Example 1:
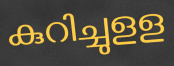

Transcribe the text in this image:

കുറിച്ചുളള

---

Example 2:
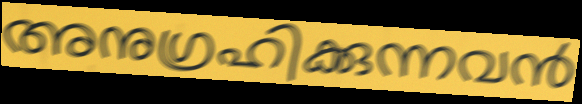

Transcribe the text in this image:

അനുഗ്രഹിക്കുന്നവൻ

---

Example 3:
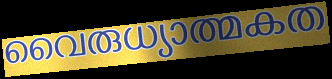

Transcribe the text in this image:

വൈരുധ്യാത്മകത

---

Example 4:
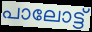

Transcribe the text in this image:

പാലോട്ട്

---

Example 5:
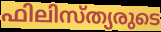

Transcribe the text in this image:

ഫിലിസ്ത്യരുടെ